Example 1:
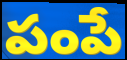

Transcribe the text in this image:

పంపే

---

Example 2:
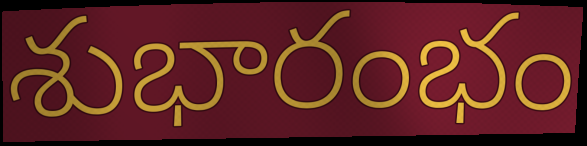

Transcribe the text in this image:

శుభారంభం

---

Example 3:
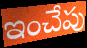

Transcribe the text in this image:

ఇంచేపు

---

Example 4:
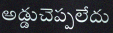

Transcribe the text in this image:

అడ్డుచెప్పలేదు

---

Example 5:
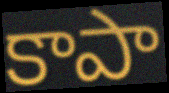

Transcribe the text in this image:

కాపా